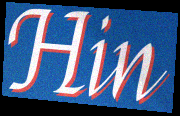
Hin